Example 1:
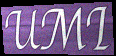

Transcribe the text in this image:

UMI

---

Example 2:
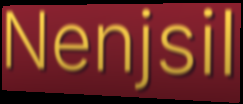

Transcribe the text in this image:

Nenjsil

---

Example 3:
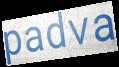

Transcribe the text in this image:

padva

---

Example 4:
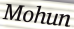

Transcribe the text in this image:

Mohun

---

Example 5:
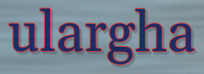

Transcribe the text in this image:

ulargha